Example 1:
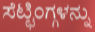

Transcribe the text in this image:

ಸೆಟ್ಟಿಂಗ್ಗಳನ್ನು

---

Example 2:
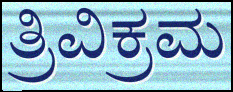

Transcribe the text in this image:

ತ್ರಿವಿಕ್ರಮ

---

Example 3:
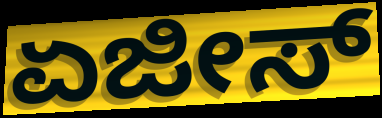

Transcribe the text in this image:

ಏಜೀಸ್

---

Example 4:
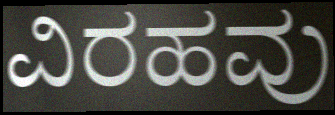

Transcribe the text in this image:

ವಿರಹವು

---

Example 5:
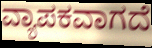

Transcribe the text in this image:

ವ್ಯಾಪಕವಾಗದೆ